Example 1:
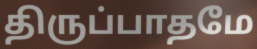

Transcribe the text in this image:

திருப்பாதமே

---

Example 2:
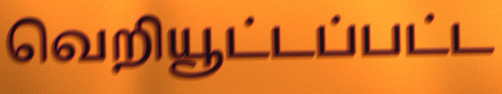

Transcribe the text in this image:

வெறியூட்டப்பட்ட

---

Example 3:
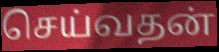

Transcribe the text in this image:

செய்வதன்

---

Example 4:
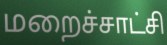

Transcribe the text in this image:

மறைச்சாட்சி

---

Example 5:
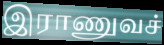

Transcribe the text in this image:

இராணுவச்